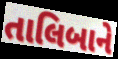
તાલિબાને